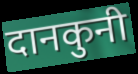
दानकुनी